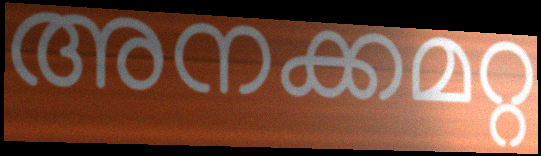
അനക്കമറ്റ